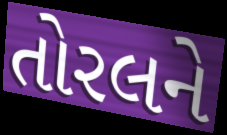
તોરલને